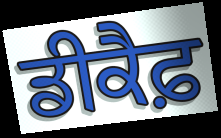
ਡੀਕੈਫ਼